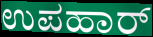
ಉಪಹಾರ್